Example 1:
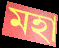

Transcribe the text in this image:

মহা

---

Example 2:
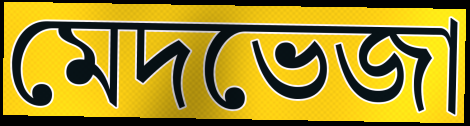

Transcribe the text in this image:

মেদভেজা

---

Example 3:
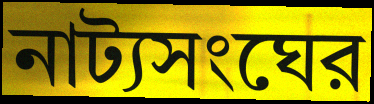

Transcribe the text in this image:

নাট্যসংঘের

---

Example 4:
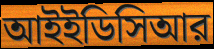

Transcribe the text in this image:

আইইডিসিআর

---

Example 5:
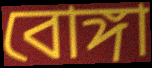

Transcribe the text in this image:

বোঙ্গা